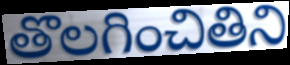
తొలగించితిని